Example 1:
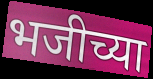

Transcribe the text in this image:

भजीच्या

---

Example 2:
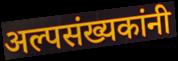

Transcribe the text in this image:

अल्पसंख्यकांनी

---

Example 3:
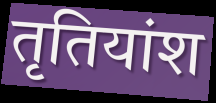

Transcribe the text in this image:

तृतियांश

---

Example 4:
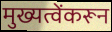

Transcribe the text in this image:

मुख्यत्वेंकरून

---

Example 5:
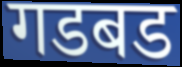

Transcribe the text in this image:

गडबड